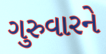
ગુરુવારને